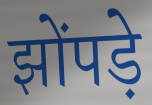
झोंपड़े